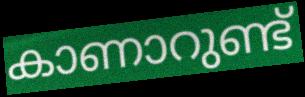
കാണാറുണ്ട്